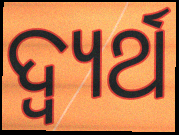
ଦ୍ୱ୍ୟର୍ଥ